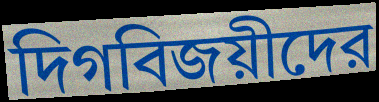
দিগবিজয়ীদের